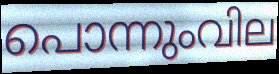
പൊന്നുംവില